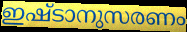
ഇഷ്ടാനുസരണം